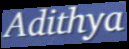
Adithya